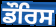
ਡੌਰਿਸ